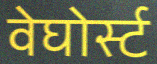
वेघोर्स्ट